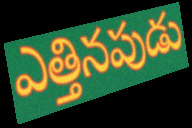
ఎత్తినపుడు